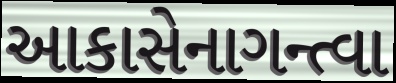
આકાસેનાગન્ત્વા